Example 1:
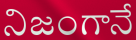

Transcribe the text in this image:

నిజంగానే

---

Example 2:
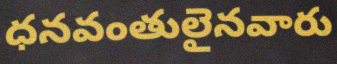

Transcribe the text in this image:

ధనవంతులైనవారు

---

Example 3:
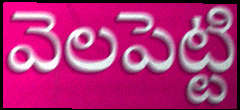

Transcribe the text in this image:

వెలపెట్టి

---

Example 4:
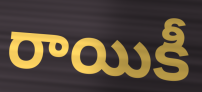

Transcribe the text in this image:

రాయికీ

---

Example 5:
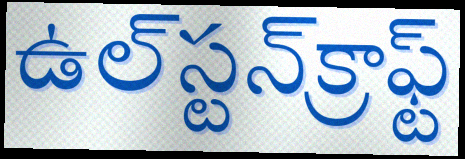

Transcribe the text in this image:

ఉల్‌స్టన్‌క్రాఫ్ట్